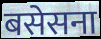
बसेसना